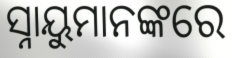
ସ୍ନାୟୁମାନଙ୍କରେ